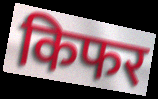
किफर